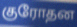
குரோதன